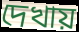
দেখায়